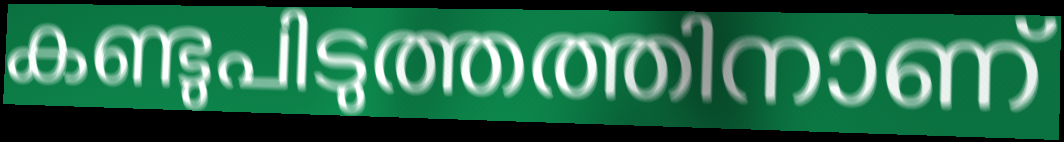
കണ്ടുപിടുത്തത്തിനാണ്